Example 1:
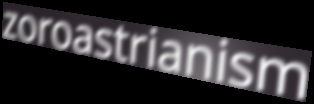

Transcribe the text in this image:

zoroastrianism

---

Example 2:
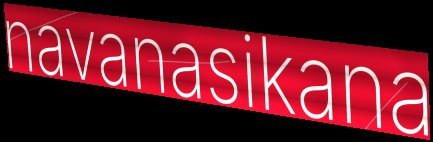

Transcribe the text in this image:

navanasikana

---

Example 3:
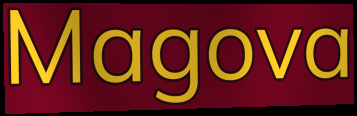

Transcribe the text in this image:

Magova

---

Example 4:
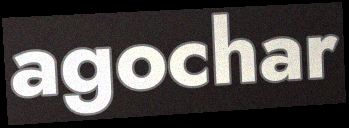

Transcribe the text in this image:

agochar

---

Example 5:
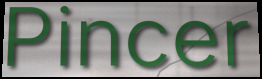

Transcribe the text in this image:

Pincer